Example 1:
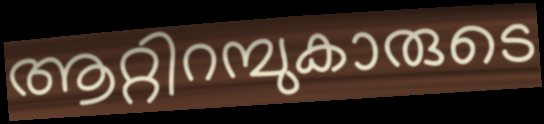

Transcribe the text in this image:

ആറ്റിറമ്പുകാരുടെ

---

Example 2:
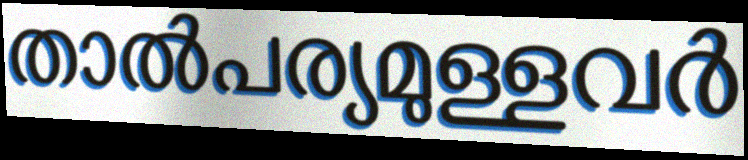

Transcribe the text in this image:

താൽപര്യമുള്ളവർ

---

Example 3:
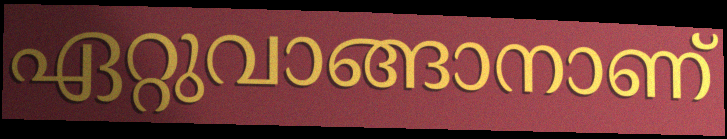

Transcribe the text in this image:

ഏറ്റുവാങ്ങാനാണ്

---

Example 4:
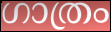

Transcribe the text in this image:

ഗാത്രം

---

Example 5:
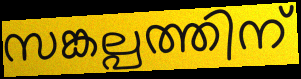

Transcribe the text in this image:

സങ്കല്പത്തിന്